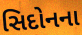
સિદોનના